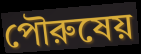
পৌরুষেয়